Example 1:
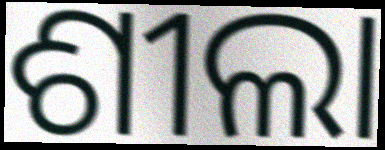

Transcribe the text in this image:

ଶୀଲା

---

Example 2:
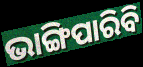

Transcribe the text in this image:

ଭାଙ୍ଗିପାରିବି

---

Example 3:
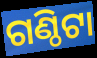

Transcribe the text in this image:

ଗଣ୍ଠିଟା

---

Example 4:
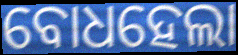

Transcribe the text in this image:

ବୋଧହେଲା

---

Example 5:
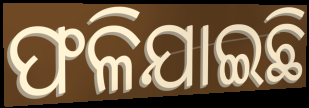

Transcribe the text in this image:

ଫଳିଯାଇଛି